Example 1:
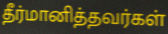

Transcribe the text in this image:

தீர்மானித்தவர்கள்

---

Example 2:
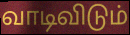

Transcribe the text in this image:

வாடிவிடும்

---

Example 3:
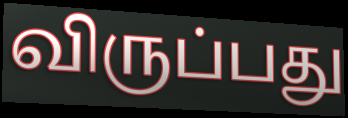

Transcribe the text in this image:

விருப்பது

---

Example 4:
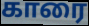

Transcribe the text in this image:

காரை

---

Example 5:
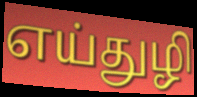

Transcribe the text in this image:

எய்துழி